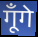
गूँगे